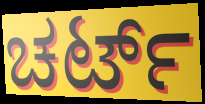
ಚರ್ಟ್